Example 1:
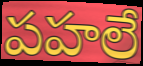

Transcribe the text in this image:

పహలే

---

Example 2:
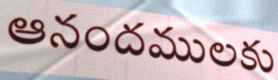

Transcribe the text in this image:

ఆనందములకు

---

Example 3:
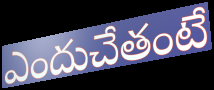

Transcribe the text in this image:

ఎందుచేతంటే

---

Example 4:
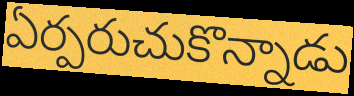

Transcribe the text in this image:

ఏర్పరుచుకొన్నాడు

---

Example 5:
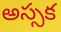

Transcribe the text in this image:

అస్సక